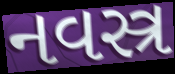
નવસ્ત્ર